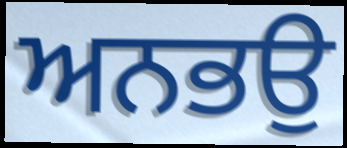
ਅਨਭਉ